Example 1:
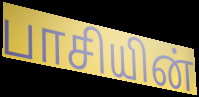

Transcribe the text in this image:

பாசியின்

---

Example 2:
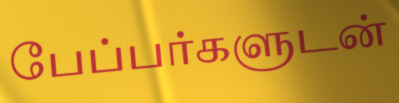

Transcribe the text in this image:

பேப்பர்களுடன்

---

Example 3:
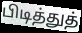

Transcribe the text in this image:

பிடித்துத்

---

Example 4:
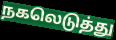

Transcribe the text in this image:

நகலெடுத்து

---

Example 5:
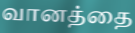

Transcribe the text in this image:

வானத்தை